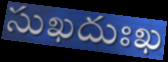
సుఖదుఃఖ